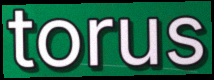
torus